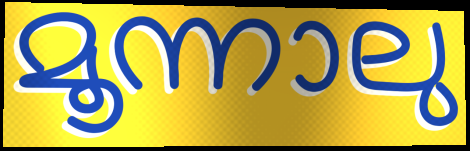
മൂന്നാലു